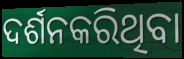
ଦର୍ଶନକରିଥିବା